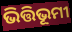
ଭିତ୍ତିଭୂମୀ